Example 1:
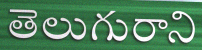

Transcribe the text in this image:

తెలుగురాని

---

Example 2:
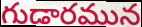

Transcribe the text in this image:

గుడారమున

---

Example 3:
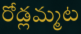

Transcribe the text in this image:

రోడ్లమ్మట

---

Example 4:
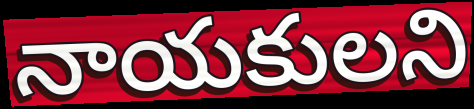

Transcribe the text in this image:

నాయకులని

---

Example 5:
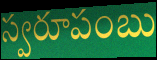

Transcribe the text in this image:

స్వరూపంబు